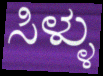
ಸಿಳ್ಳು